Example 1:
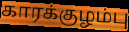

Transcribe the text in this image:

காரக்குழம்பு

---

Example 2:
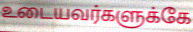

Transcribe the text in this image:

உடையவர்களுக்கே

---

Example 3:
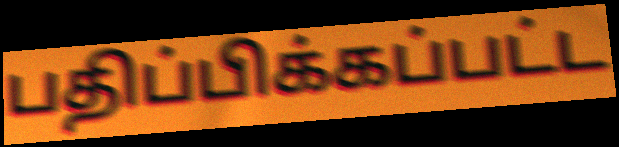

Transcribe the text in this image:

பதிப்பிக்கப்பட்ட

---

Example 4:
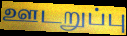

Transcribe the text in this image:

ஊடறுப்பு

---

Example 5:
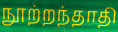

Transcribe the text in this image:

நூற்றந்தாதி